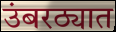
उंबरठ्यात